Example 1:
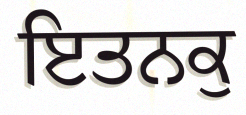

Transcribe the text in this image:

ਇਤਨਕੁ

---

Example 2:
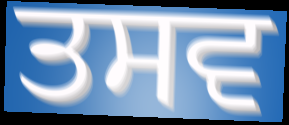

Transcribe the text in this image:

ਤਸਵ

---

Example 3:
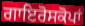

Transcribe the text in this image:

ਗਾਇਰੋਸਕੋਪਾਂ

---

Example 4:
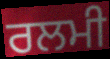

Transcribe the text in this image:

ਰਲਮੀ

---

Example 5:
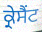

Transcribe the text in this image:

ਕ੍ਰੇਸੈਂਟ